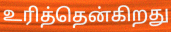
உரித்தென்கிறது